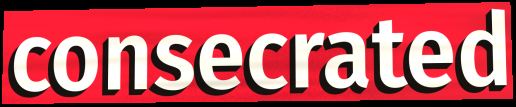
consecrated